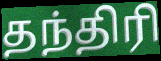
தந்திரி